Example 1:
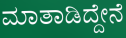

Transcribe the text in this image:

ಮಾತಾಡಿದ್ದೇನೆ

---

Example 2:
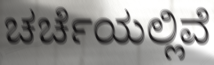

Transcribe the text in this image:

ಚರ್ಚೆಯಲ್ಲಿವೆ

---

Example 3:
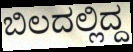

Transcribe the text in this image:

ಬಿಲದಲ್ಲಿದ್ದ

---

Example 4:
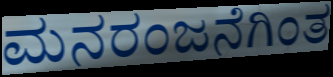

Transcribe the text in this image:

ಮನರಂಜನೆಗಿಂತ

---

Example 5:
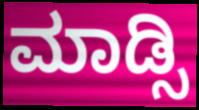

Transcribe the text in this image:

ಮಾಡ್ಸಿ